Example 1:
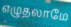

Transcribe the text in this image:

எழுதலாமே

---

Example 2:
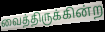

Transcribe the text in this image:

வைத்திருக்கின்ற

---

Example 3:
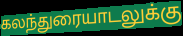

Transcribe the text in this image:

கலந்துரையாடலுக்கு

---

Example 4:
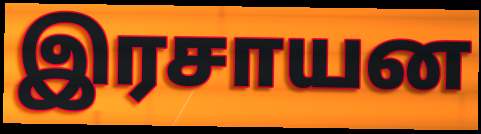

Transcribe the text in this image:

இரசாயன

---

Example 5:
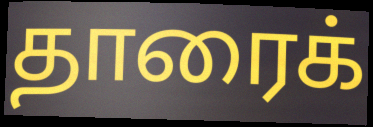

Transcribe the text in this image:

தாரைக்